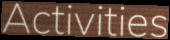
Activities